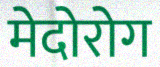
मेदोरोग